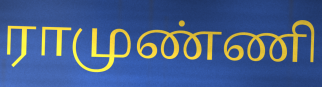
ராமுண்ணி